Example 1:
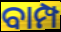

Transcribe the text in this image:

ବାମ୍ପ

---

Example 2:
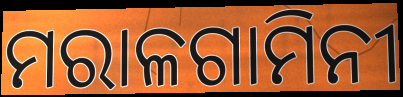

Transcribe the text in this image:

ମରାଳଗାମିନୀ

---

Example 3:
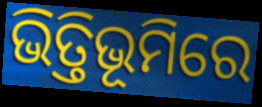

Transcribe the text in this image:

ଭିତ୍ତିଭୂମିରେ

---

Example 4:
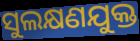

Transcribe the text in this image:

ସୁଲକ୍ଷଣଯୁକ୍ତ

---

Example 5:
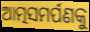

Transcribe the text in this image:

ଆତ୍ମସମର୍ପଣକୁ